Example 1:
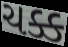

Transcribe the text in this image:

ચક્ક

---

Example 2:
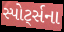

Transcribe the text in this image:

સ્પોર્ટ્સના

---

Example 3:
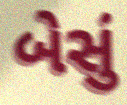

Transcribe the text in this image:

બેસું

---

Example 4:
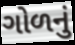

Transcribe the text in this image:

ગોળનું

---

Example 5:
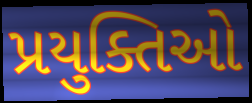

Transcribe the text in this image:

પ્રયુક્તિઓ